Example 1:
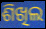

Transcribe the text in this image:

ଶିଖିଲ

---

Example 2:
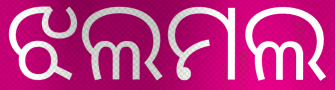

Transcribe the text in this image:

ଝଲମଲ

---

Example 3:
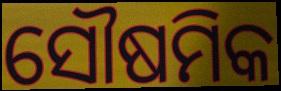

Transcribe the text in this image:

ସୌଷମିକ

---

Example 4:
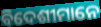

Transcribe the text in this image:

ବିଦେଶୀମାନେ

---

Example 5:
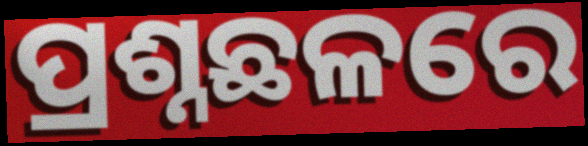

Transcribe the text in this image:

ପ୍ରଶ୍ନଛଳରେ